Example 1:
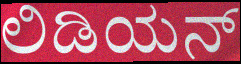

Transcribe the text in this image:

ಲಿಡಿಯನ್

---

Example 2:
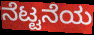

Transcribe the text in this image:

ನೆಟ್ಟನೆಯ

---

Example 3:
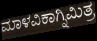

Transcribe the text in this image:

ಮಾಳವಿಕಾಗ್ನಿಮಿತ್ರ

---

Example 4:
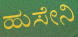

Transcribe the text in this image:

ಹುಸೇನಿ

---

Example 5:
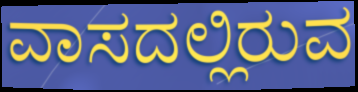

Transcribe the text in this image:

ವಾಸದಲ್ಲಿರುವ